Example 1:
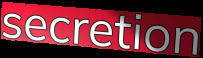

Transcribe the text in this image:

secretion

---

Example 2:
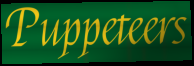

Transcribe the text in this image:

Puppeteers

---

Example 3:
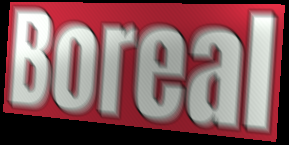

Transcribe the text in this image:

Boreal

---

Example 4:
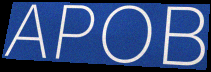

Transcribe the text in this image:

APOB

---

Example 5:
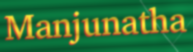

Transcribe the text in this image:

Manjunatha